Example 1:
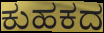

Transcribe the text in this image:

ಕುಹಕದ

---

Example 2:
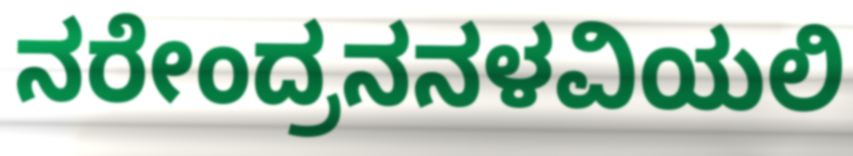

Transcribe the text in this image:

ನರೇಂದ್ರನನಳವಿಯಲಿ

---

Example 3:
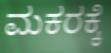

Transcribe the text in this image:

ಮಕರಕ್ಕೆ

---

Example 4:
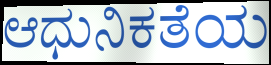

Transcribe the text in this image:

ಆಧುನಿಕತೆಯ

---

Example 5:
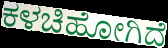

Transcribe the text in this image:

ಕಳಚಿಹೋಗಿದೆ